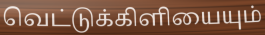
வெட்டுக்கிளியையும்